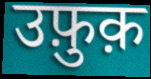
उफ़ुक़